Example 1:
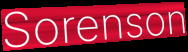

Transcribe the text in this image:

Sorenson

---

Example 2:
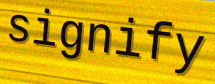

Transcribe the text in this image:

signify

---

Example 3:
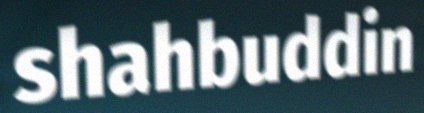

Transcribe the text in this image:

shahbuddin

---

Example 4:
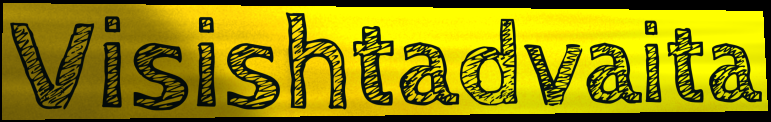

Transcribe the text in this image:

Visishtadvaita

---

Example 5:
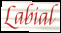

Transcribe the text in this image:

Labial